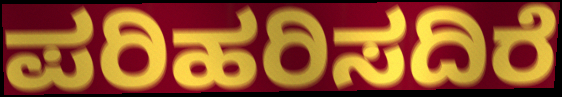
ಪರಿಹರಿಸದಿರೆ